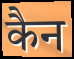
कैन